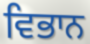
ਵਿਭਾਨ